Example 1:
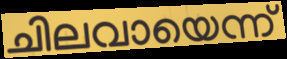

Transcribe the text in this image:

ചിലവായെന്ന്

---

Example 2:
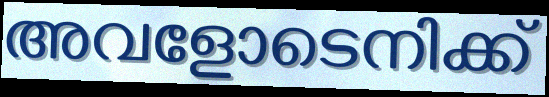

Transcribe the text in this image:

അവളോടെനിക്ക്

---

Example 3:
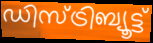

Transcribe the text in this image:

ഡിസ്ട്രിബ്യൂട്ട്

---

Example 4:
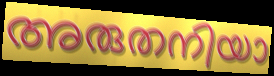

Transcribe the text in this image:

അരുതനിയാ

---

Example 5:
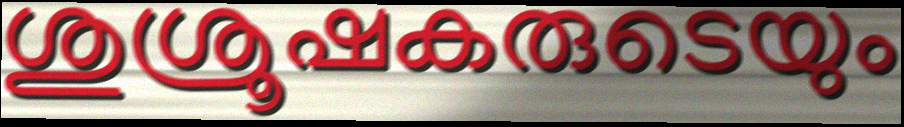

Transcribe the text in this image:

ശുശ്രൂഷകരുടെയും